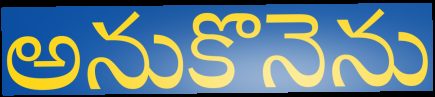
అనుకొనెను